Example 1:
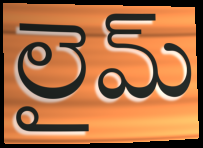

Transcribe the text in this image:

లైమ్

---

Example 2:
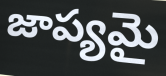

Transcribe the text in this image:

జాప్యమై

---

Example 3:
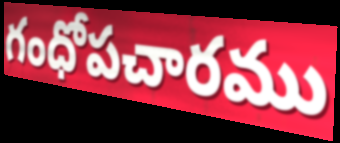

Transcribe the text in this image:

గంధోపచారము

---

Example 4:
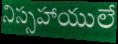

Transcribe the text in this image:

నిస్సహాయులే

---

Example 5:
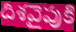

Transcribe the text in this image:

దిశవైపుకి